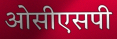
ओसीएसपी